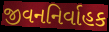
જીવનનિર્વાહક